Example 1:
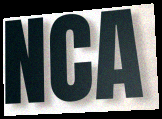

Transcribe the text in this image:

NCA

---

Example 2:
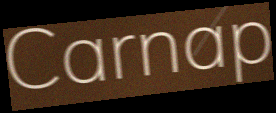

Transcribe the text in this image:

Carnap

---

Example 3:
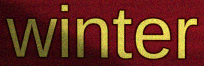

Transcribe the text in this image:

winter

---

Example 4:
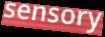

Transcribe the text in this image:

sensory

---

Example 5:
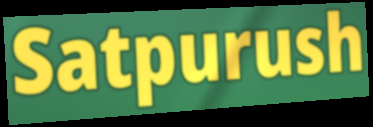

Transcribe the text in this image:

Satpurush